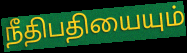
நீதிபதியையும்